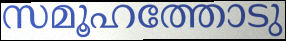
സമൂഹത്തോടു